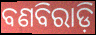
ବଣବିରାଡ଼ି